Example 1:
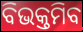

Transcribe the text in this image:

ବିଭକ୍ତମିବ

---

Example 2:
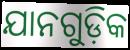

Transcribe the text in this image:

ଯାନଗୁଡ଼ିକ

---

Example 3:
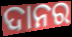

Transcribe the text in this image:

ଦାନର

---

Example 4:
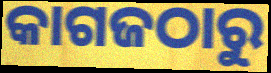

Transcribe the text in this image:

କାଗଜଠାରୁ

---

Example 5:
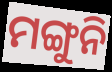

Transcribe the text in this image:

ମଙ୍ଗୁନି